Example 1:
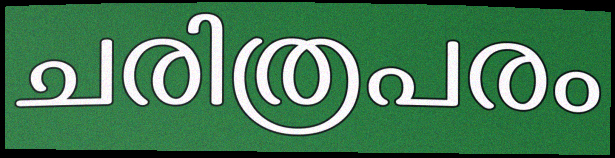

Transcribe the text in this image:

ചരിത്രപരം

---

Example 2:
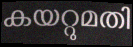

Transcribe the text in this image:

കയറ്റുമതി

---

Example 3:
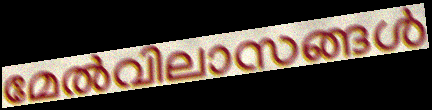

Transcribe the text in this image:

മേൽവിലാസങ്ങൾ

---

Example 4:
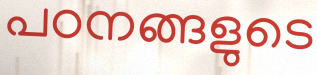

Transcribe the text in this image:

പഠനങ്ങളുടെ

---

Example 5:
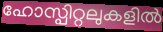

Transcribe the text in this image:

ഹോസ്പിറ്റലുകളിൽ